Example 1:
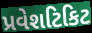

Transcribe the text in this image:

પ્રવેશટિકિટ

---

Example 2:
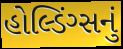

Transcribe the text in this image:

હોલ્ડિંગ્સનું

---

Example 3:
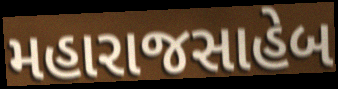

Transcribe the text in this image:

મહારાજસાહેબ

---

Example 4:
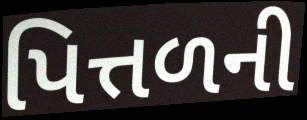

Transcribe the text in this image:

પિત્તળની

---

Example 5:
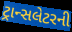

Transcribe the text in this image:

ટ્રાન્સલેટરની